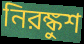
নিরঙ্কুশ